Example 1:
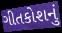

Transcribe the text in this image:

ગીતકોશનું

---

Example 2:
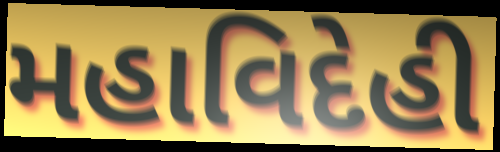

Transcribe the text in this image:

મહાવિદેહી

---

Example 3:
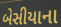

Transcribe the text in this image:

બેસીયાના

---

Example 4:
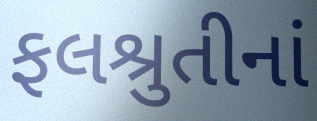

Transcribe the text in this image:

ફલશ્રુતીનાં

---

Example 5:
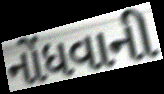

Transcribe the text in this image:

નોંધવાની